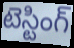
టెస్టింగ్